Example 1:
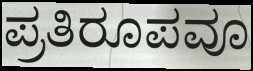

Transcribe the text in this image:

ಪ್ರತಿರೂಪವೂ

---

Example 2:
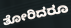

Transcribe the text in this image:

ತೋರಿದರೂ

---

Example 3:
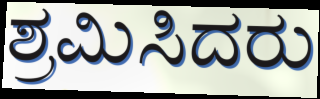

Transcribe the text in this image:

ಶ್ರಮಿಸಿದರು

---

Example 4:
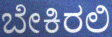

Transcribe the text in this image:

ಬೇಕಿರಲಿ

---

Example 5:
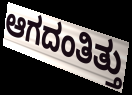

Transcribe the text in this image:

ಆಗದಂತಿತ್ತು